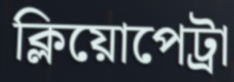
ক্লিয়োপেট্রা